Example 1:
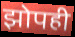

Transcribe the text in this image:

झोपही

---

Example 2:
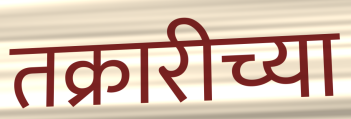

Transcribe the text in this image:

तक्रारीच्या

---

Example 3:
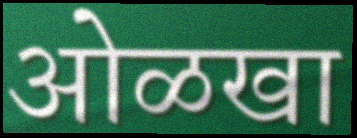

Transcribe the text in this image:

ओळखा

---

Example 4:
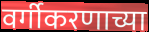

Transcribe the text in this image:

वर्गीकरणाच्या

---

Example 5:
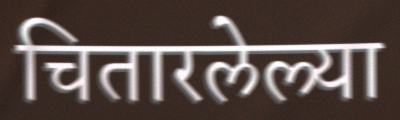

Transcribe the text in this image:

चितारलेल्या